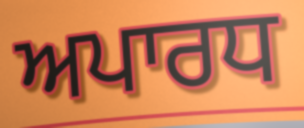
ਅਪਾਰਧ